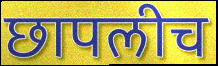
छापलीच